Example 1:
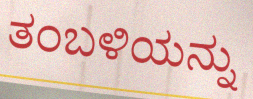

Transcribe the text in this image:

ತಂಬಳಿಯನ್ನು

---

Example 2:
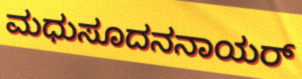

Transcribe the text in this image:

ಮಧುಸೂದನನಾಯರ್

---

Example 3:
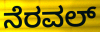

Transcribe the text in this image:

ನೆರವಲ್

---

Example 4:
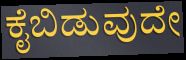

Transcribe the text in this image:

ಕೈಬಿಡುವುದೇ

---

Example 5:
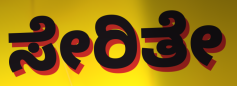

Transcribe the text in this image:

ಸೇರಿತೇ